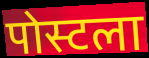
पोस्टला